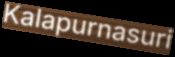
Kalapurnasuri